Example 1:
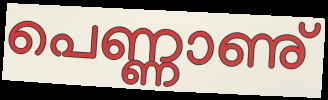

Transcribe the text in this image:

പെണ്ണാണു്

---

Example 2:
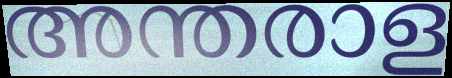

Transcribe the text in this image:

അന്തരാള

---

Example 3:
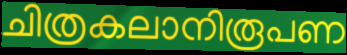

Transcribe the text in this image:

ചിത്രകലാനിരൂപണ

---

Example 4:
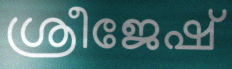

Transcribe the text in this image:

ശ്രീജേഷ്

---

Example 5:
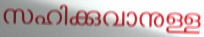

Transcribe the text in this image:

സഹിക്കുവാനുള്ള